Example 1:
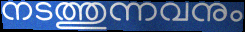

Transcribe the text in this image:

നടത്തുന്നവനും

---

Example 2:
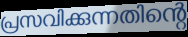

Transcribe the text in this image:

പ്രസവിക്കുന്നതിന്റെ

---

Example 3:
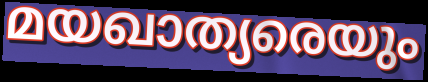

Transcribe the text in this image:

മയഖാത്യരെയും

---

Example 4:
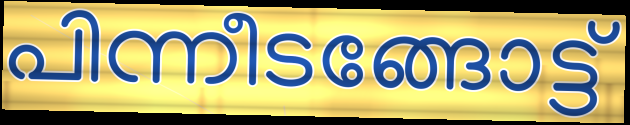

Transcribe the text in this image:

പിന്നീടങ്ങോട്ട്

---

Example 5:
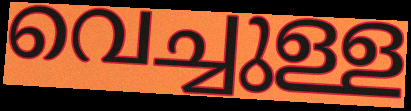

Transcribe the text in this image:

വെച്ചുള്ള